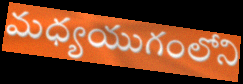
మధ్యయుగంలోని